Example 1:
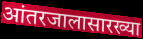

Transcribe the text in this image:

आंतरजालासारख्या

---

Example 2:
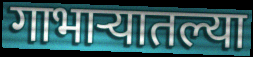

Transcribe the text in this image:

गाभाऱ्यातल्या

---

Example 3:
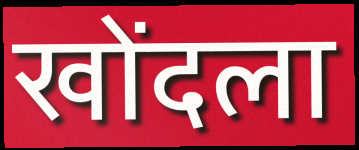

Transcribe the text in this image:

खोंदला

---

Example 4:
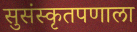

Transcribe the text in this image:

सुसंस्कृतपणाला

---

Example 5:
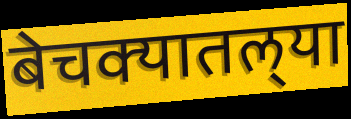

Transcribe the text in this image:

बेचक्यातल्या